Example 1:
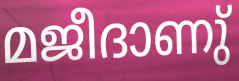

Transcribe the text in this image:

മജീദാണു്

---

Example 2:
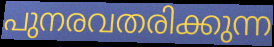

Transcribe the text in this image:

പുനരവതരിക്കുന്ന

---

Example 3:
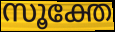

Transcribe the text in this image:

സൂക്തേ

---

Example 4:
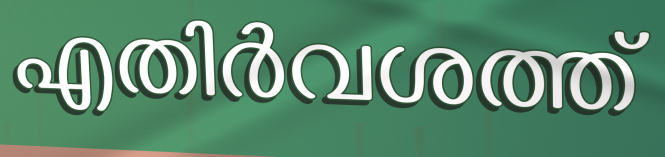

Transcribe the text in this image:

എതിർവശത്ത്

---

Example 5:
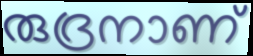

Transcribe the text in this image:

രുദ്രനാണ്